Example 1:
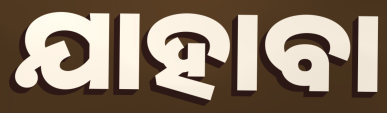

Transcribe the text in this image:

ଯାହାବା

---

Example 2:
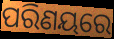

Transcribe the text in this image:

ପରିଣୟରେ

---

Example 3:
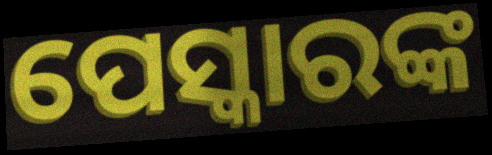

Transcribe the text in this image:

ପେସ୍କାରଙ୍କ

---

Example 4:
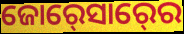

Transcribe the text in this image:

ଜୋର୍‍ସୋର୍‍ରେ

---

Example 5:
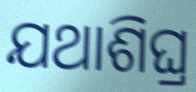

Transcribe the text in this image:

ଯଥାଶିଘ୍ର